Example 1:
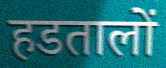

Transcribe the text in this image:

हडतालों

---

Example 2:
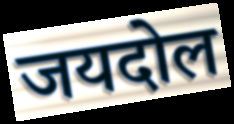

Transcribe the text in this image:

जयदोल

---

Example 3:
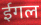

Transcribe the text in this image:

ईगल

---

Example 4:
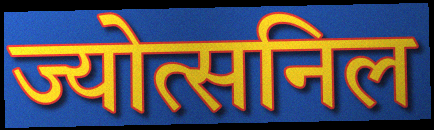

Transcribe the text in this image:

ज्योत्सनिल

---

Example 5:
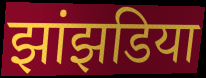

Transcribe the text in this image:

झांझडिया